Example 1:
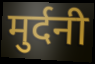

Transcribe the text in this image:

मुर्दनी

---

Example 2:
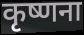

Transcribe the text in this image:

कृष्णना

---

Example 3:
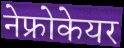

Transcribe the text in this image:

नेफ्रोकेयर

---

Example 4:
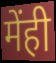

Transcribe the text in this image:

मेंही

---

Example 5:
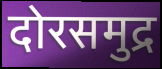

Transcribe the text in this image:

दोरसमुद्र